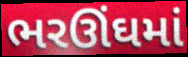
ભરઊંઘમાં